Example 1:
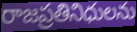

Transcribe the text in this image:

రాజప్రతినిధులను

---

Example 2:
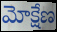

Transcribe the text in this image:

మోక్షేణ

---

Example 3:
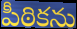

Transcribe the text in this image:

పీఠికను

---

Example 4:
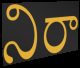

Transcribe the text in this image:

నిరా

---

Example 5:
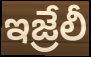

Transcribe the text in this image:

ఇజ్రేలీ